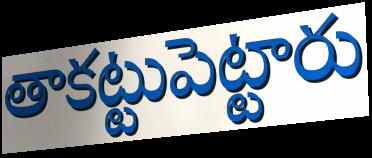
తాకట్టుపెట్టారు